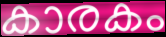
കാരകം